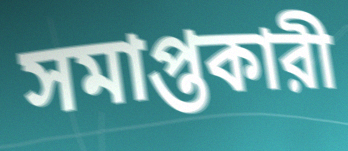
সমাপ্তকারী